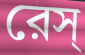
রেস্